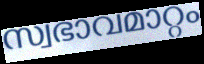
സ്വഭാവമാറ്റം